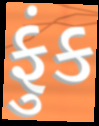
ફુંક